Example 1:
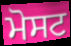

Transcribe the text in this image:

ਮੋਸਟ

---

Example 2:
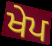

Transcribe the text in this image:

ਖੇਪ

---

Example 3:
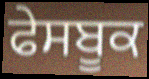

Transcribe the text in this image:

ਫੇਸਬੂਕ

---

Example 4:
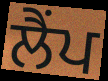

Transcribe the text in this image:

ਲੈਂਪ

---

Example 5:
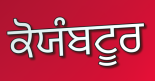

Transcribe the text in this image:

ਕੋਯੰਬਟੂਰ